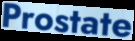
Prostate